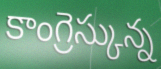
కాంగ్రెస్కున్న